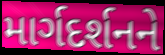
માર્ગદર્શનને